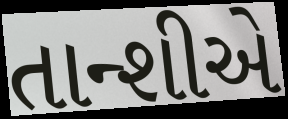
તાન્શીએ